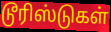
டூரிஸ்டுகள்